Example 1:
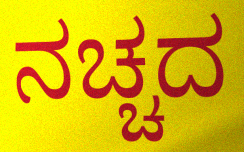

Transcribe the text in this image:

ನಚ್ಚದ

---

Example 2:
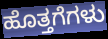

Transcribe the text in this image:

ಹೊತ್ತಗೆಗಳು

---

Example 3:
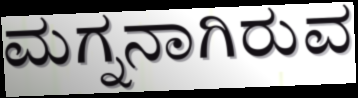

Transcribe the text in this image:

ಮಗ್ನನಾಗಿರುವ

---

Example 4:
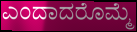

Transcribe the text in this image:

ಎಂದಾದರೊಮ್ಮೆ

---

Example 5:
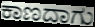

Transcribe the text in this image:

ಕಾಣದಾಗು